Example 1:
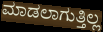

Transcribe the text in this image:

ಮಾಡಲಾಗುತ್ತಿಲ್ಲ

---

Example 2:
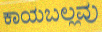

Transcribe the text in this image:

ಕಾಯಬಲ್ಲವು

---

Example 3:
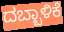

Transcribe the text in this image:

ದಬ್ಬಾಳಿಕೆ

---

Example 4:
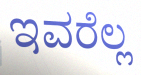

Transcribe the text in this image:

ಇವರೆಲ್ಲ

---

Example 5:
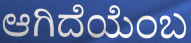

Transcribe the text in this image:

ಆಗಿದೆಯೆಂಬ